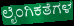
ಲೈಂಗಿಕತೆಗಳ